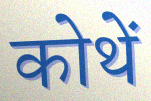
कोथें